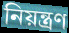
নিয়ন্ত্ৰণ